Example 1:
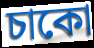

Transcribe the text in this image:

চাকো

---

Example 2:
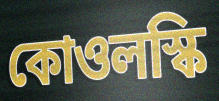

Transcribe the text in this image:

কোওলস্কি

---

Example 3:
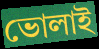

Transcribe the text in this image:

ভোলাই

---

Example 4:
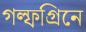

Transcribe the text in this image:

গল্ফগ্রিনে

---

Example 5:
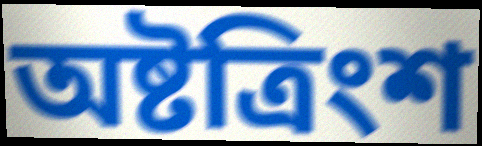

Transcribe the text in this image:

অষ্টত্রিংশ